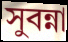
সুবন্না